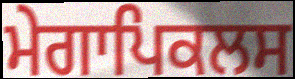
ਮੇਗਾਪਿਕਲਸ